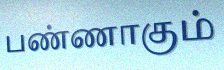
பண்ணாகும்